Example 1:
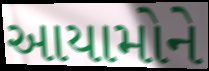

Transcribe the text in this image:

આયામોને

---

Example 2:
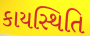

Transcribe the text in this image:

કાયસ્થિતિ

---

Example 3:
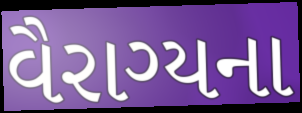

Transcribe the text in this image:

વૈરાગ્યના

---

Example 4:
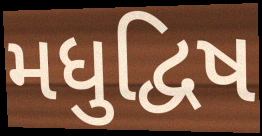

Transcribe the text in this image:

મધુદ્વિષ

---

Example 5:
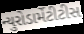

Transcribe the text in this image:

ન્યુરોડાર્મેટીટીસ